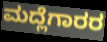
ಮದ್ಲೆಗಾರರ